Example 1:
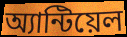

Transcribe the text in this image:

অ্যান্টিয়েল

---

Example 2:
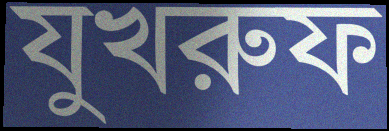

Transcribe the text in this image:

যুখরুফ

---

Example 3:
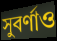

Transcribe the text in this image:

সুবর্ণাও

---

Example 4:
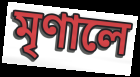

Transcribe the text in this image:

মৃণালে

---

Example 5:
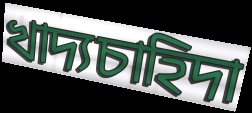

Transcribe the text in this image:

খাদ্যচাহিদা